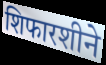
शिफारशीने